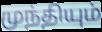
முந்தியும்